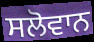
ਸਲੋਵਾਨ